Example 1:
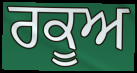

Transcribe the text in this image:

ਰਕੂਅ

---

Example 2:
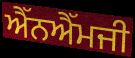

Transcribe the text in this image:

ਐੱਨਐੱਮਜੀ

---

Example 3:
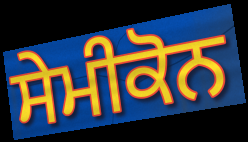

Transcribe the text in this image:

ਸੇਮੀਕੋਨ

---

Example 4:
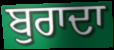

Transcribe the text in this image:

ਬੁਰਾਦਾ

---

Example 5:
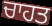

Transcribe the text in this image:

ਚਾਹਤ